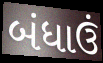
બંધાઉં